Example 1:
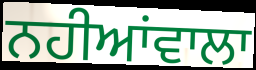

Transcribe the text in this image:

ਨਹੀਆਂਵਾਲਾ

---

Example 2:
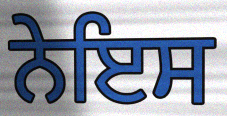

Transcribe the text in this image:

ਨੇਇਸ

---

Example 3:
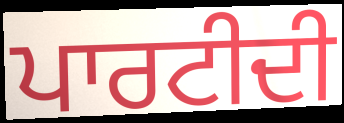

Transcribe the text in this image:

ਪਾਰਟੀਦੀ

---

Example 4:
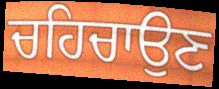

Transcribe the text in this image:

ਚਹਿਚਾਉਣ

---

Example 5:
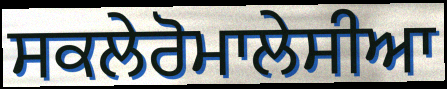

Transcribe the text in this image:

ਸਕਲੇਰੋਮਾਲੇਸੀਆ